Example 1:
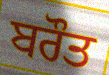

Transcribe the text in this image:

ਬਰੌਤ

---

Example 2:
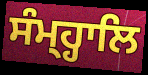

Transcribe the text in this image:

ਸੰਮ੍ਹ੍ਹਾਲਿ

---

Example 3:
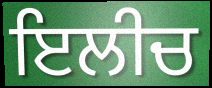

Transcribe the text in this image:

ਇਲੀਚ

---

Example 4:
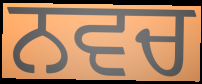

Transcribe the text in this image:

ਨਵਚ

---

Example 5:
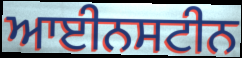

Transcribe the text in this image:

ਆਈਨਸਟੀਨ